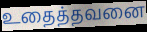
உதைத்தவனை